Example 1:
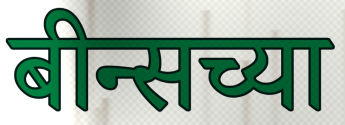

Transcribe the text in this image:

बीन्सच्या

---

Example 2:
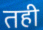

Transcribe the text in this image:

तही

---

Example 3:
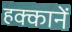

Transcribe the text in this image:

हक्कानें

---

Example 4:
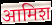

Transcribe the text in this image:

आमिश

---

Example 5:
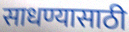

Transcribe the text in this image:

साधण्यासाठी